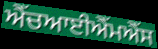
ਐੱਚਆਈਐੱਮਐੱਸ